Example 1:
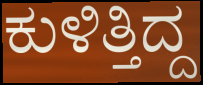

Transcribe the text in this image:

ಕುಳಿತ್ತಿದ್ದ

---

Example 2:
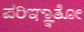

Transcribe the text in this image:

ಪರಿಞ್ಞಾತೋ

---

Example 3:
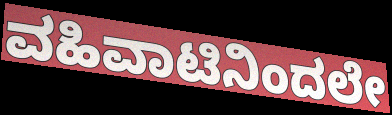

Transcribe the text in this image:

ವಹಿವಾಟಿನಿಂದಲೇ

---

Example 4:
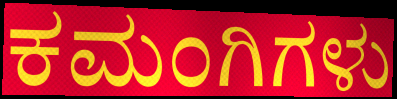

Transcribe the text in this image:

ಕಮಂಗಿಗಳು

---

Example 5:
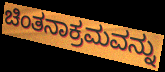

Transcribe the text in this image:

ಚಿಂತನಾಕ್ರಮವನ್ನು